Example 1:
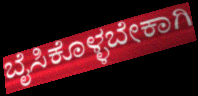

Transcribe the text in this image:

ಬೈಸಿಕೊಳ್ಳಬೇಕಾಗಿ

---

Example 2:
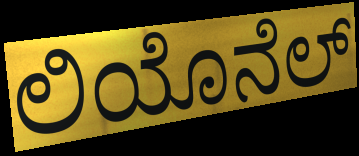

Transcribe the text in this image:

ಲಿಯೊನೆಲ್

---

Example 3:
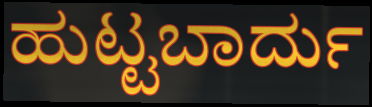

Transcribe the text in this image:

ಹುಟ್ಟಬಾರ್ದು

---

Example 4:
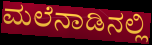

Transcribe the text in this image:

ಮಲೆನಾಡಿನಲ್ಲಿ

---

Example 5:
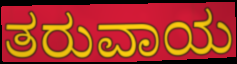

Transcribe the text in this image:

ತರುವಾಯ